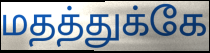
மதத்துக்கே